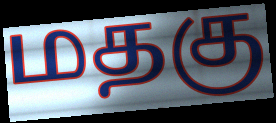
மதகு